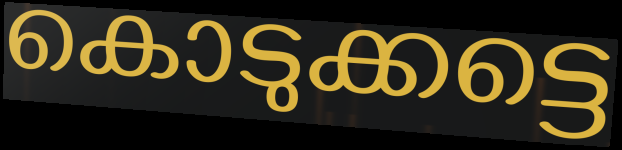
കൊടുക്കട്ടെ